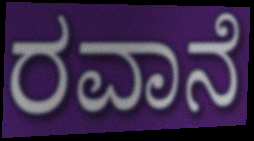
ರವಾನೆ